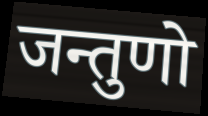
जन्तुणो